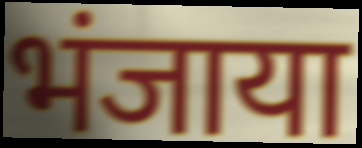
भंजाया